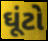
ઘૂંટો